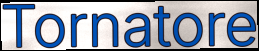
Tornatore